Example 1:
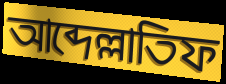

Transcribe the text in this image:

আব্দেল্লাতিফ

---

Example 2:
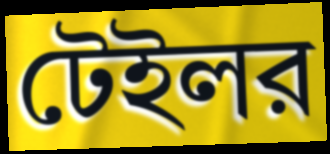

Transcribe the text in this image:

টেইলর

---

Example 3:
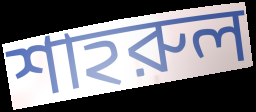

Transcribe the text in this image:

শাহরুল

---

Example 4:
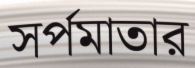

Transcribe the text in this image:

সর্পমাতার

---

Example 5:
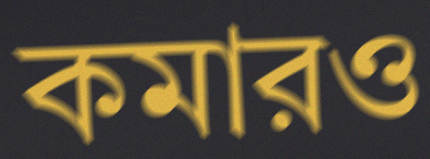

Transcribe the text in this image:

কমারও